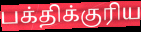
பக்திக்குரிய